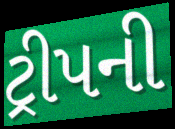
ટ્રીપની